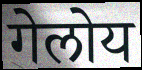
गेलोय